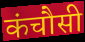
कंचौसी